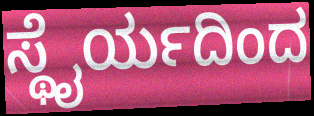
ಸ್ಥೈರ್ಯದಿಂದ